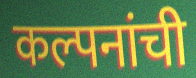
कल्पनांची